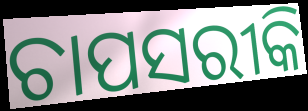
ଚାପସରୀକି